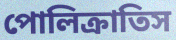
পোলিক্রাতিস